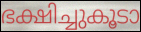
ഭക്ഷിച്ചുകൂടാ